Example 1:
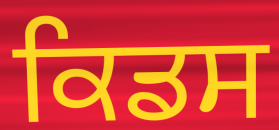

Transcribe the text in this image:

ਕਿਡਸ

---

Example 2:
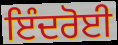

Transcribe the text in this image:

ਇੰਦਰੋਈ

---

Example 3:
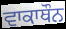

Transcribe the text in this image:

ਵਾਕਾਥੌਨ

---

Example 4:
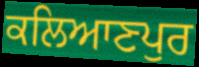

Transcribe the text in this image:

ਕਲਿਆਣਪੁਰ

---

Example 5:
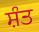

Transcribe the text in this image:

ਸ਼ੰਤ